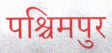
पश्चिमपुर